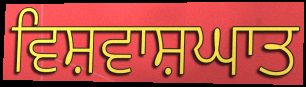
ਵਿਸ਼ਵਾਸ਼ਘਾਤ